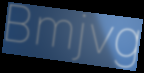
Bmjvg